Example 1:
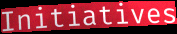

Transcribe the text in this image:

Initiatives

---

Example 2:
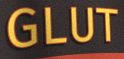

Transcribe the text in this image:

GLUT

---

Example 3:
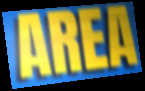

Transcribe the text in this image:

AREA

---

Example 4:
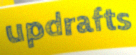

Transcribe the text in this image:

updrafts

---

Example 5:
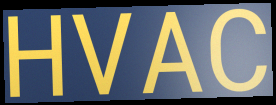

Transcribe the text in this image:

HVAC